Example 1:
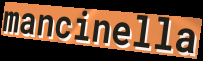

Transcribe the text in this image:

mancinella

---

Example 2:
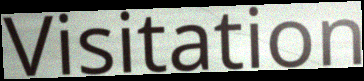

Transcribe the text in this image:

Visitation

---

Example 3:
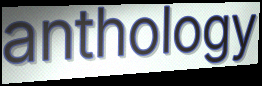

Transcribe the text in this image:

anthology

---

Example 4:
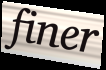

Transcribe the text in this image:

finer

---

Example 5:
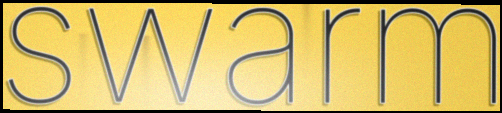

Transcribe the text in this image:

swarm